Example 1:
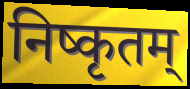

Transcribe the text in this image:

निष्कृतम्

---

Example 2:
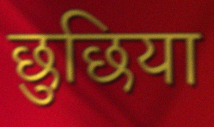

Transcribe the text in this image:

छुछिया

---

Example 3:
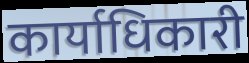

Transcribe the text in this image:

कार्याधिकारी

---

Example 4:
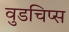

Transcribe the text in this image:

वुडचिप्स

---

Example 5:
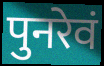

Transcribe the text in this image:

पुनरेवं